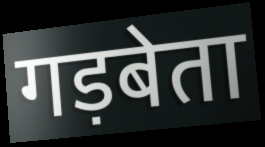
गड़बेता